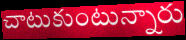
చాటుకుంటున్నారు